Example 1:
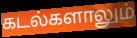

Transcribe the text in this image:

கடல்களாலும்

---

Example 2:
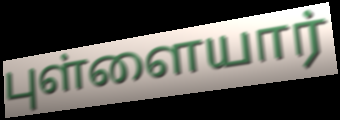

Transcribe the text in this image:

புள்ளையார்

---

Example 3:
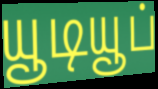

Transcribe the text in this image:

யூடியூப்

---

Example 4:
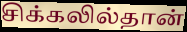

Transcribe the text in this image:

சிக்கலில்தான்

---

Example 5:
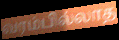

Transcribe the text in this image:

வரம்பில்லாத